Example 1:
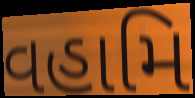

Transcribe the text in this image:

વહામિ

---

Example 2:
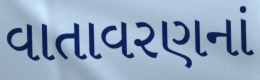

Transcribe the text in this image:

વાતાવરણનાં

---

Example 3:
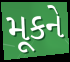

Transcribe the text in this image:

મૂકને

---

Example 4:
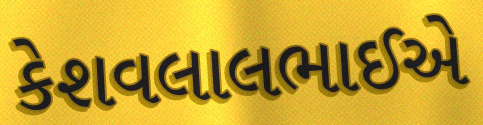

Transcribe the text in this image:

કેશવલાલભાઈએ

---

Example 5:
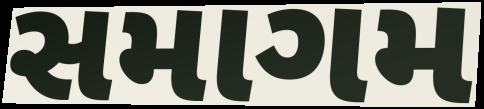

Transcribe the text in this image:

સમાગમ